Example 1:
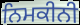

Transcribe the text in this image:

ਨਿਮਕੀਨੀ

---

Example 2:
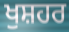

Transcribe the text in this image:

ਖੁਸ਼ਹਰ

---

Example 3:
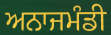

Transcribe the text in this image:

ਅਨਾਜਮੰਡੀ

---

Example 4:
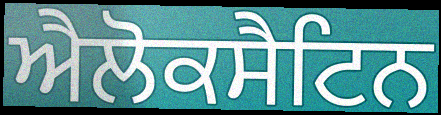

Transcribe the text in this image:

ਐਲੋਕਸੈਟਿਨ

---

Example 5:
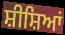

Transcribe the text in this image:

ਸ਼ੀਸ਼ਿਆਂ